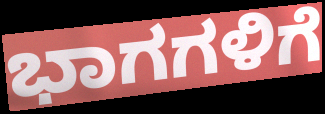
ಭಾಗಗಳಿಗೆ